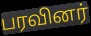
பரவினர்